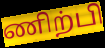
ணிற்பி